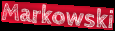
Markowski